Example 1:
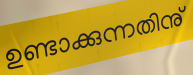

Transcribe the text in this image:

ഉണ്ടാക്കുന്നതിനു്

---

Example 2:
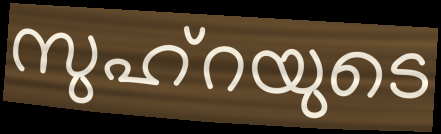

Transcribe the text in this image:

സുഹ്റയുടെ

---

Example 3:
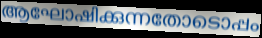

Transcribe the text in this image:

ആഘോഷിക്കുന്നതോടൊപ്പം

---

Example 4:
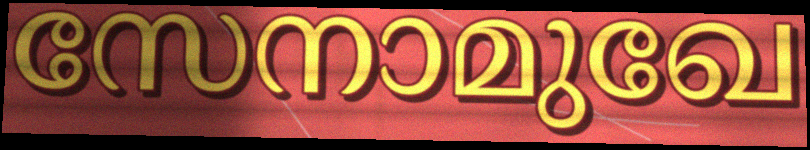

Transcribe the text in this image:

സേനാമുഖേ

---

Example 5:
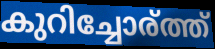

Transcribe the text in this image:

കുറിച്ചോര്ത്ത്